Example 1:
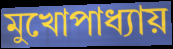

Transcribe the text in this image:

মুখোপাধ্যায়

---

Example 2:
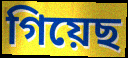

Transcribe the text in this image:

গিয়েছ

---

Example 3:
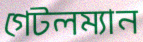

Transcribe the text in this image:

গেটলম্যান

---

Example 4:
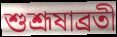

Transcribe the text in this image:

শুশ্রূষাব্রতী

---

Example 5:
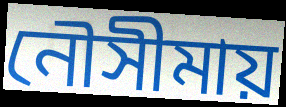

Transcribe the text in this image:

নৌসীমায়